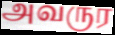
அவருர